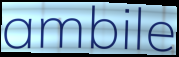
ambile